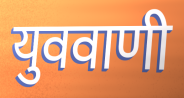
युववाणी